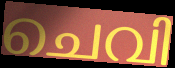
ചെവി